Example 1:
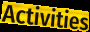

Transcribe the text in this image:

Activities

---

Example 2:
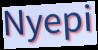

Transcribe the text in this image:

Nyepi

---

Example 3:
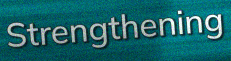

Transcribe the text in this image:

Strengthening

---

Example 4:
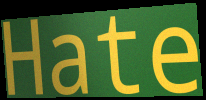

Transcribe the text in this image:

Hate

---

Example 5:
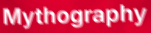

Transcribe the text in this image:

Mythography